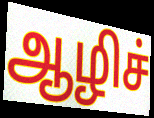
ஆழிச்